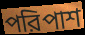
পরিপাশ